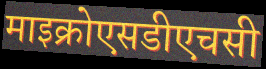
माइक्रोएसडीएचसी